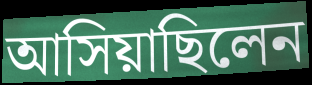
আসিয়াছিলেন